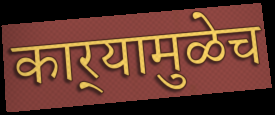
कार्यामुळेच